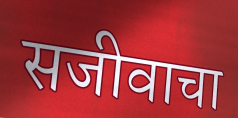
सजीवाचा